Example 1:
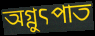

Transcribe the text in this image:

অগ্নুৎপাত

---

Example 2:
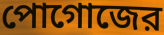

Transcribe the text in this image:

পোগোজের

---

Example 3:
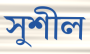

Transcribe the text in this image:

সুশীল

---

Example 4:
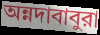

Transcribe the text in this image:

অন্নদাবাবুরা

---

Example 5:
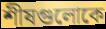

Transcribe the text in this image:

শীষগুলোকে